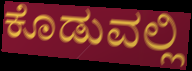
ಕೊಡುವಲ್ಲಿ